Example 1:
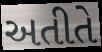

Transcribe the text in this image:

અતીતે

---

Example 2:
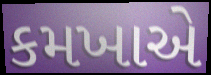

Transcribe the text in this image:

કમખાએ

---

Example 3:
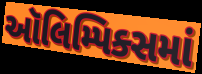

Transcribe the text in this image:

ઑલિમ્પિક્સમાં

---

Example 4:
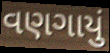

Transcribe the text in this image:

વણગાયું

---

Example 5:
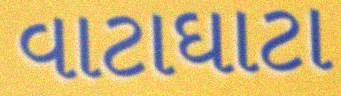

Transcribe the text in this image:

વાટાઘાટા